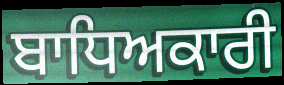
ਬਾਧਿਅਕਾਰੀ